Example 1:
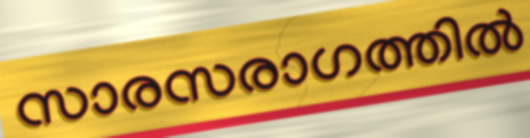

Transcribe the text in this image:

സാരസരാഗത്തിൽ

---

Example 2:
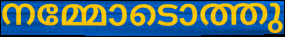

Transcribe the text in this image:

നമ്മോടൊത്തു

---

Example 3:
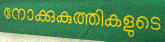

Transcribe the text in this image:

നോക്കുകുത്തികളുടെ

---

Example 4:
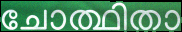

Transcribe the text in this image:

ചോത്ഥിതാ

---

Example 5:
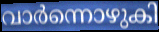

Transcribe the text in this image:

വാർന്നൊഴുകി